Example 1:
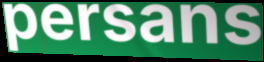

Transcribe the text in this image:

persans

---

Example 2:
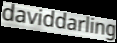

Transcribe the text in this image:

daviddarling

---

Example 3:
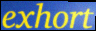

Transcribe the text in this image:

exhort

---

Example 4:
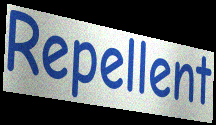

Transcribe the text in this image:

Repellent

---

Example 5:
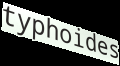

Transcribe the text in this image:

typhoides